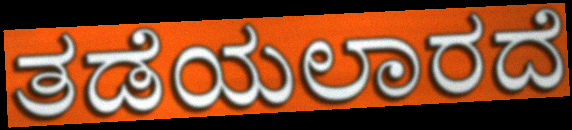
ತಡೆಯಲಾರದೆ